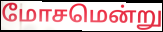
மோசமென்று